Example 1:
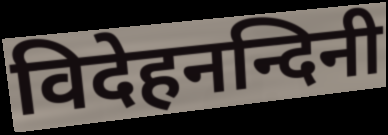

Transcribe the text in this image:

विदेहनन्दिनी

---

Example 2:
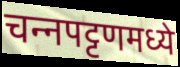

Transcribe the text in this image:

चन्नपट्टणमध्ये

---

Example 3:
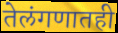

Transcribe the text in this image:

तेलंगणातही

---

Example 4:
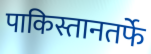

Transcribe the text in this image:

पाकिस्तानतर्फे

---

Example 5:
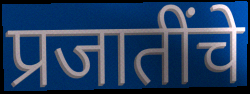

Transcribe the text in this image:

प्रजातींचे